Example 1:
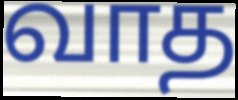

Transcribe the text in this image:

வாத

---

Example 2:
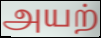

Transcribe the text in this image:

அயற்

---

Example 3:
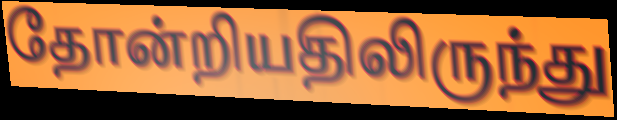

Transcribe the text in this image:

தோன்றியதிலிருந்து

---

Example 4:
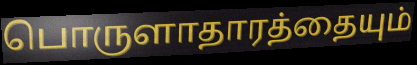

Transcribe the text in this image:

பொருளாதாரத்தையும்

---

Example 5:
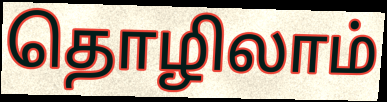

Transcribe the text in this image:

தொழிலாம்